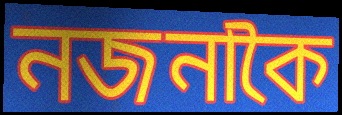
নজনাকৈ